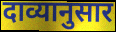
दाव्यानुसार